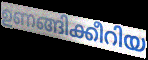
ഉണങ്ങിക്കീറിയ